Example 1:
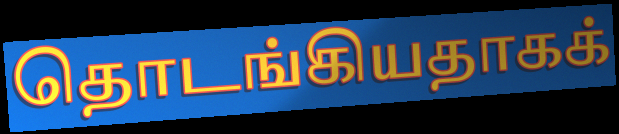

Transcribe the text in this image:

தொடங்கியதாகக்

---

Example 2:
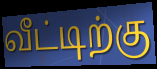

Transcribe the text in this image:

வீட்டிற்கு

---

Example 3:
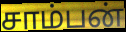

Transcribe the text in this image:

சாம்பன்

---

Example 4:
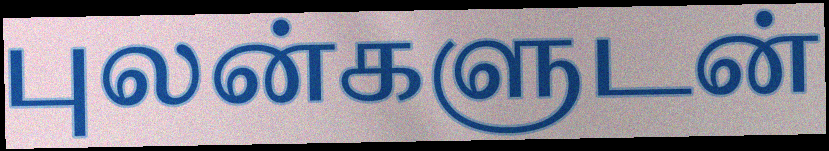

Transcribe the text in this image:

புலன்களுடன்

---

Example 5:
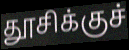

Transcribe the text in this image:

தூசிக்குச்